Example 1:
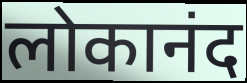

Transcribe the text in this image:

लोकानंद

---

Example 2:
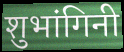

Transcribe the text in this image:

शुभांगिनी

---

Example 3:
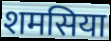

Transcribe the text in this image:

शमसिया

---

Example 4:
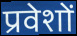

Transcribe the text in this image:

प्रवेशों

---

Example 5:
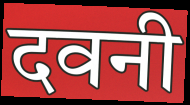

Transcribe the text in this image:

दवनी